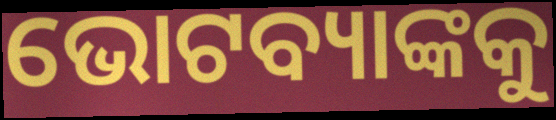
ଭୋଟବ୍ୟାଙ୍କକୁ